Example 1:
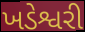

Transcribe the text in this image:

ખડેશ્વરી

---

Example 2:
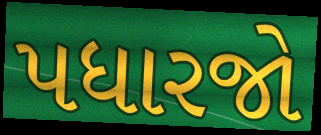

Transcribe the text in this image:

પધારજો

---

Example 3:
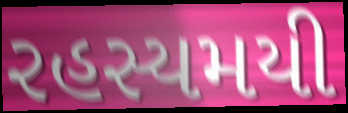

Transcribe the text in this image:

રહસ્યમયી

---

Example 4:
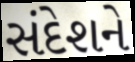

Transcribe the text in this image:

સંદેશને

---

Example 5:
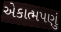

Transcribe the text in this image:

એકાત્મપણું